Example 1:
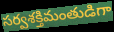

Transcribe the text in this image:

సర్వశక్తిమంతుడిగా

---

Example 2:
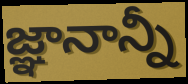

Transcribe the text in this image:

జ్ఞానాన్నీ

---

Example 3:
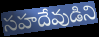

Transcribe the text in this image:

సహదేవుడిని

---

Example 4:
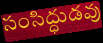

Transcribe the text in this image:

సంసిద్ధుడవు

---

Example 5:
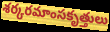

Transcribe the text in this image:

శర్కరమాంసకృత్తులు